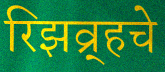
रिझव्र्हचे